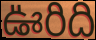
ఊరిది